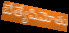
బేత్యేషిమోతు